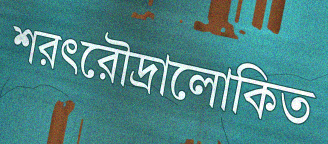
শরৎরৌদ্রালোকিত